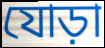
যোড়া